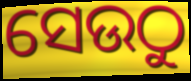
ସେଉଠୁ